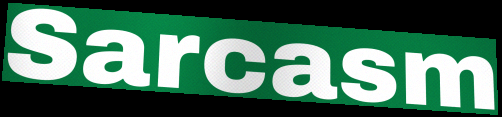
Sarcasm